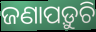
ଜଣାପଡ଼ୁଚି